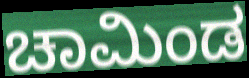
ಚಾಮಿಂಡ